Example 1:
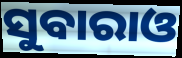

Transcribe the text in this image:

ସୁବାରାଓ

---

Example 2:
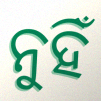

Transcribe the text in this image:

ନୁହିଁ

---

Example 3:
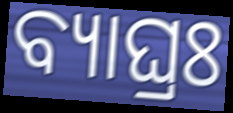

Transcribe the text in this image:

ବ୍ୟାଘ୍ରଃ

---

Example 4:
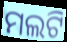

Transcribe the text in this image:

ମଲଟି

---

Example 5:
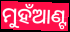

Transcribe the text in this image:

ମୁହଁଆଣ୍ଟ